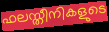
ഫലസ്തീനികളുടെ